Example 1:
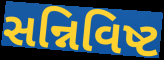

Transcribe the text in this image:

સન્નિવિષ્ટ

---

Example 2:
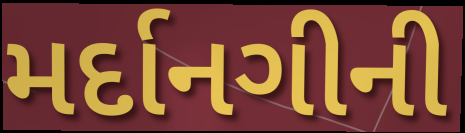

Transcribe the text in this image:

મર્દાનગીની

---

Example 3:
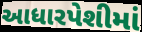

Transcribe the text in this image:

આધારપેશીમાં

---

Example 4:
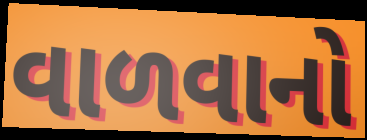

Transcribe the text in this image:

વાળવાનો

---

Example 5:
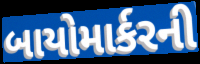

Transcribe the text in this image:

બાયોમાર્કરની